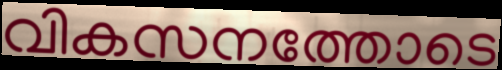
വികസനത്തോടെ